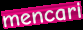
mencari